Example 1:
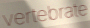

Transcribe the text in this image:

vertebrate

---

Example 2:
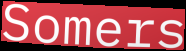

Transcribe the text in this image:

Somers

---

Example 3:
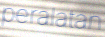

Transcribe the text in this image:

peralatan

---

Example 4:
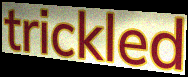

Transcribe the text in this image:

trickled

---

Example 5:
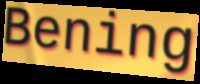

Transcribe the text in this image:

Bening